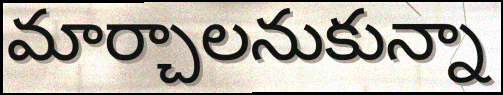
మార్చాలనుకున్నా